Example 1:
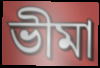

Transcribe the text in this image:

ভীমা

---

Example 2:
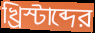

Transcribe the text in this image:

খ্রিস্টাব্দের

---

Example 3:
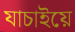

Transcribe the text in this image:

যাচাইয়ে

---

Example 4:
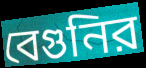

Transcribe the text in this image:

বেগুনির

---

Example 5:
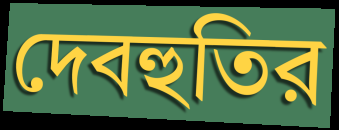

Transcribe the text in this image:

দেবহুতির